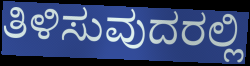
ತಿಳಿಸುವುದರಲ್ಲಿ